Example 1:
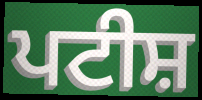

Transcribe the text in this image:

ਪਟੀਸ਼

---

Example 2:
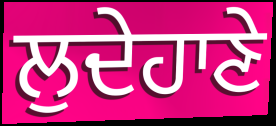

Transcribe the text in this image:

ਲੁਦੇਹਾਣੇ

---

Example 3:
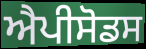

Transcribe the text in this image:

ਐਪੀਸੋਡਸ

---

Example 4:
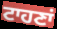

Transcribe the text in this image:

ਟਾਹਣਾਂ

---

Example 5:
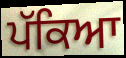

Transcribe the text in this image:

ਪੱਕਿਆ